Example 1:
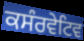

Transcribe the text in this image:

ਕਸੰਰਵੇਟਿਵ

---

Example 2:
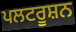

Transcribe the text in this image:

ਪਲਟਰੂਸ਼ਨ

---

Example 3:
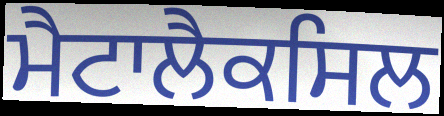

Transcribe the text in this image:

ਮੈਟਾਲੈਕਸਿਲ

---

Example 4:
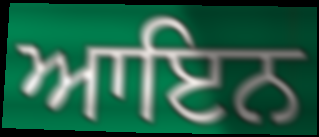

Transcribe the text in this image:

ਆਇਨ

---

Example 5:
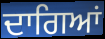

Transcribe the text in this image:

ਦਾਗਿਆਂ